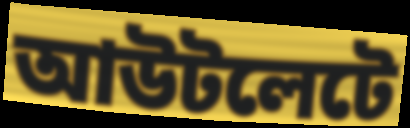
আউটলেটে